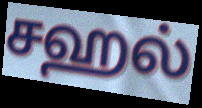
சஹல்